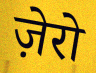
ज़ेरो